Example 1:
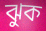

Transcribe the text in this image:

ঝুক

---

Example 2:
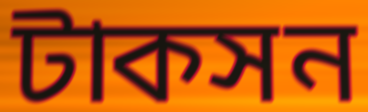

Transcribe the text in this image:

টাকসন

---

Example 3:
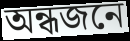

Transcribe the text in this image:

অন্ধজনে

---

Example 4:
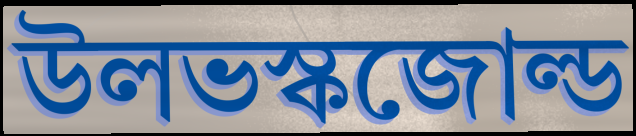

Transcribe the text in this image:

উলভস্কজোল্ড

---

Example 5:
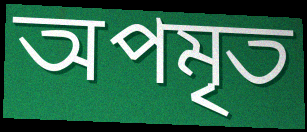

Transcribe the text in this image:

অপমৃত